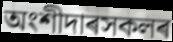
অংশীদাৰসকলৰ